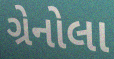
ગ્રેનોલા